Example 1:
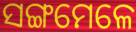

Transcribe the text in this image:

ସଙ୍ଗମେଳେ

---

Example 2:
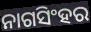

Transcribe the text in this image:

ନାଗସିଂହର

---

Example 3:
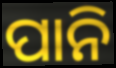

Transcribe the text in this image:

ପାନି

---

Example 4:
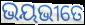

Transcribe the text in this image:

ଭୟଭୀତେ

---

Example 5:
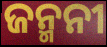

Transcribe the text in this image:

ଜନ୍ମନୀ